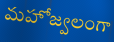
మహోజ్వలంగా